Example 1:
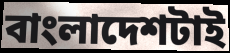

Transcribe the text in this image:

বাংলাদেশটাই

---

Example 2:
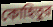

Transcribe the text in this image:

কোহিতুর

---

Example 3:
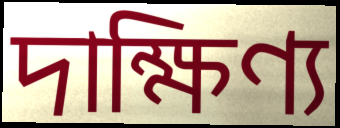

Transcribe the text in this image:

দাক্ষিণ্য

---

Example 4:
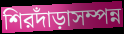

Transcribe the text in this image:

শিরদাঁড়াসম্পন্ন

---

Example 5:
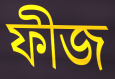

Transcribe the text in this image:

ফীজ